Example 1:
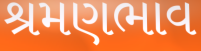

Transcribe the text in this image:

શ્રમણભાવ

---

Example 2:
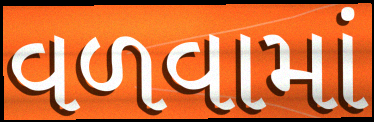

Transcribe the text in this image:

વળવામાં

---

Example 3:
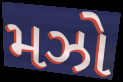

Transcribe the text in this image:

મઝો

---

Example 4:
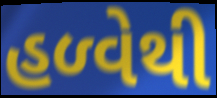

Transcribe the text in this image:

હળ્વેથી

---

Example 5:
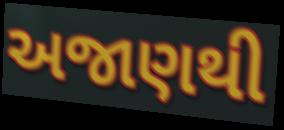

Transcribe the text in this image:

અજાણથી